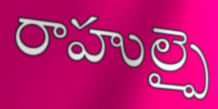
రాహుల్పై